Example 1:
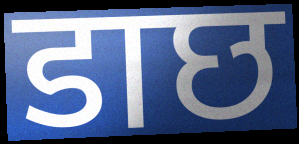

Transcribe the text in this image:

डाछ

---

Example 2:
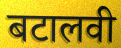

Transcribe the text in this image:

बटालवी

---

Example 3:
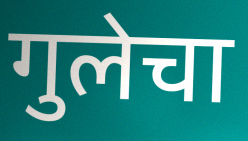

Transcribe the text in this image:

गुलेचा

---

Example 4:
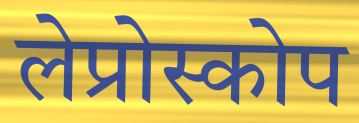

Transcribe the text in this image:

लेप्रोस्कोप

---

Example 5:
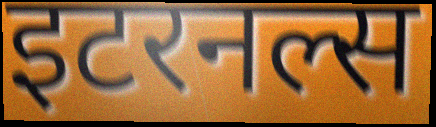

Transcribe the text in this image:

इटरनल्स